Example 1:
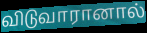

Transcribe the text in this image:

விடுவாரானால்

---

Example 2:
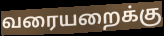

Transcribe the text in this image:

வரையறைக்கு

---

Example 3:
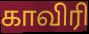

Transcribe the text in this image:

காவிரி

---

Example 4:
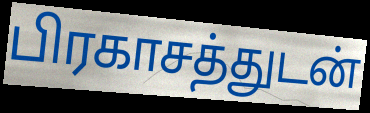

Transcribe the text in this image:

பிரகாசத்துடன்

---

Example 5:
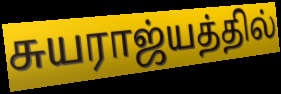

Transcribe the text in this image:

சுயராஜ்யத்தில்